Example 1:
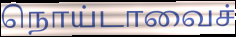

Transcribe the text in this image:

நொய்டாவைச்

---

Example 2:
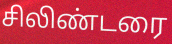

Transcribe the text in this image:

சிலிண்டரை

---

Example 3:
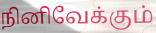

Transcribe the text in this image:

நினிவேக்கும்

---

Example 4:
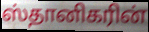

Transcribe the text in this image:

ஸ்தானிகரின்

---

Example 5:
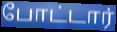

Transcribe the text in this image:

போட்டார்